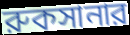
রুকসানার